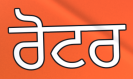
ਰੋਟਰ